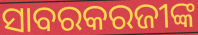
ସାବରକରଜୀଙ୍କ